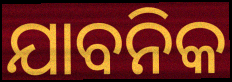
ଯାବନିକ